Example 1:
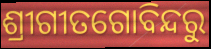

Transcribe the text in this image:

ଶ୍ରୀଗୀତଗୋବିନ୍ଦରୁ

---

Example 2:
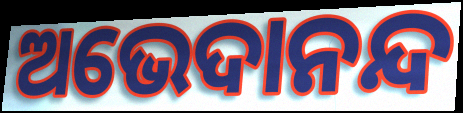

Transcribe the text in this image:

ଅଭେଦାନନ୍ଦ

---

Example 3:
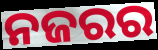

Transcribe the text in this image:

ନଜରର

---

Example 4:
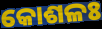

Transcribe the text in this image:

କୋଶଳଃ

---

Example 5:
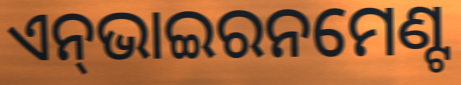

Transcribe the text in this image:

ଏନ୍‌ଭାଇରନମେଣ୍ଟ